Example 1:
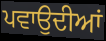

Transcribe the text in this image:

ਪਵਾਉਦੀਆਂ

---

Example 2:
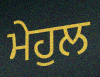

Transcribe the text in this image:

ਮੇਹੁਲ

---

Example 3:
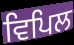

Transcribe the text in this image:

ਵਿਪਿਲ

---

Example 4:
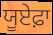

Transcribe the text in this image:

ਯੂਏਫ਼ਾ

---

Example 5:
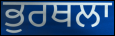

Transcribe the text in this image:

ਭੁਰਥਲਾ